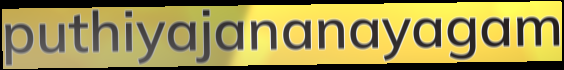
puthiyajananayagam